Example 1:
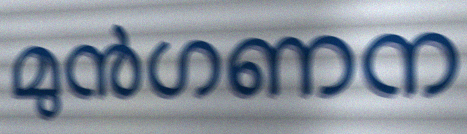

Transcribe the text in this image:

മുൻഗണന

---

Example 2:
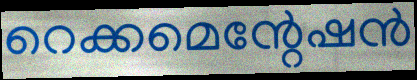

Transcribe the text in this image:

റെക്കമെന്റേഷൻ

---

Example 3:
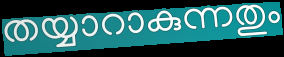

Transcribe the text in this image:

തയ്യാറാകുന്നതും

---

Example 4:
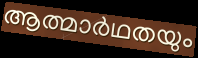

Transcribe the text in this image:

ആത്മാർഥതയും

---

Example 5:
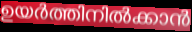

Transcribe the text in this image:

ഉയർത്തിനിൽക്കാൻ